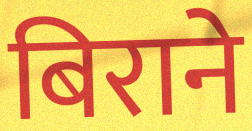
बिराने